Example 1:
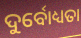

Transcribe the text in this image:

ଦୁର୍ବୋଧ୍ୟତା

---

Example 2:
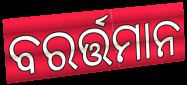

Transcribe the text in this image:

ବରର୍ତ୍ତମାନ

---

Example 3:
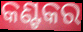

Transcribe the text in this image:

କଣ୍ଟକର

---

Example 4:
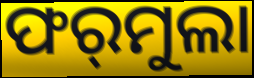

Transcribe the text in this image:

ଫର୍‌ମୁଲା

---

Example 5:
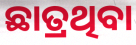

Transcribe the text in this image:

ଛାତ୍ରଥିବା